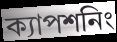
ক্যাপশনিং